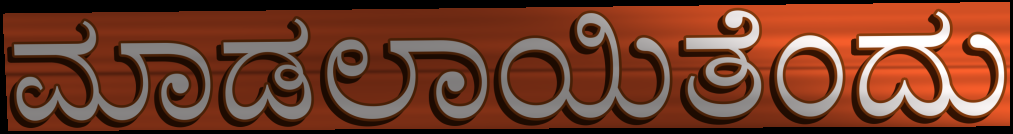
ಮಾಡಲಾಯಿತೆಂದು